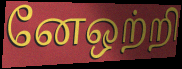
னேஒற்றி